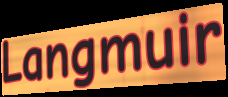
Langmuir